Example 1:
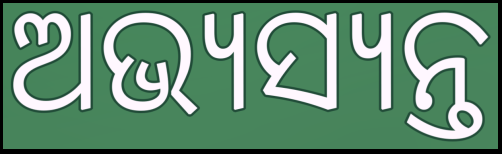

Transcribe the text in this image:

ଅଭ୍ୟସ୍ୟନ୍ତ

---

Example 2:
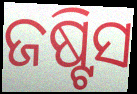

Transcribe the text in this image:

ଜଷ୍ଟିସ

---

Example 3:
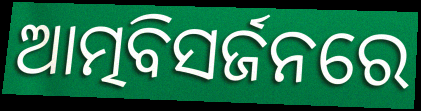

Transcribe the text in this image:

ଆତ୍ମବିସର୍ଜନରେ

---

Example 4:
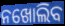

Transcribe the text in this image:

ନଖୋଲିବ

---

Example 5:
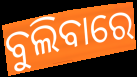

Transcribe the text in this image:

ବୁଲିବାରେ